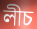
লীচ